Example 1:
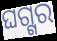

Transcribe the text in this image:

ଘଗ୍ଗର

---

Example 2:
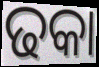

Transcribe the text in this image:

ଢକା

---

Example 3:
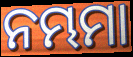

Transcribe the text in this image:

ନମ୍ଭମା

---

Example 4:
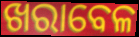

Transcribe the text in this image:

ଖରାବେଳ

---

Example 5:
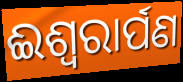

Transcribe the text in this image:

ଈଶ୍ୱରାର୍ପଣ